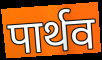
पार्थव